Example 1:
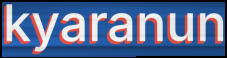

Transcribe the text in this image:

kyaranun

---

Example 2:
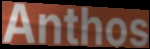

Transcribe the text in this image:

Anthos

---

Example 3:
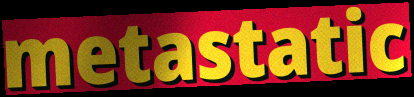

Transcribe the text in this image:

metastatic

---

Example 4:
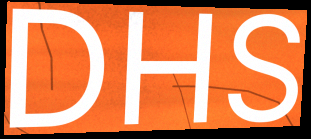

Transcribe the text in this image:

DHS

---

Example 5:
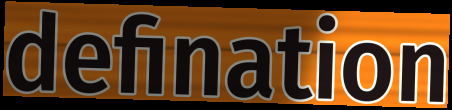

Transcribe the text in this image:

defination